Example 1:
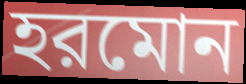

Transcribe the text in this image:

হরমোন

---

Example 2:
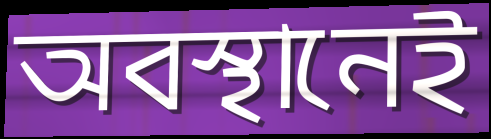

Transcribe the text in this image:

অবস্থানেই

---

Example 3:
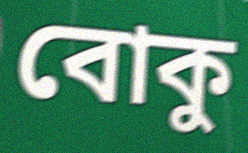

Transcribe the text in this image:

বোকু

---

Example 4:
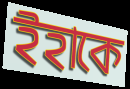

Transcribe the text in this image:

ইহাকে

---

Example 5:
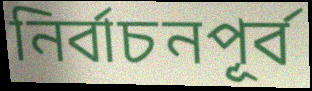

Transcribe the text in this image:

নির্বাচনপূর্ব